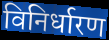
विनिर्धारण